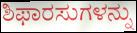
ಶಿಫಾರಸುಗಳನ್ನು